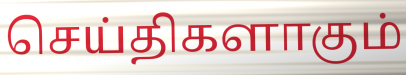
செய்திகளாகும்